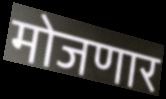
मोजणार